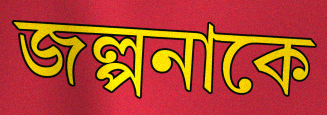
জল্পনাকে